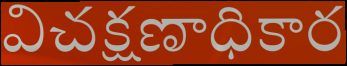
విచక్షణాధికార